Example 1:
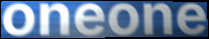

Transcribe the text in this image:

oneone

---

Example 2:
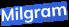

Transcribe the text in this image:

Milgram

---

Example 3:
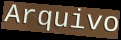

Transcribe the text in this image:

Arquivo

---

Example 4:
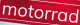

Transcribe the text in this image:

motorrad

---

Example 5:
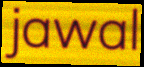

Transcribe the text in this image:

jawal